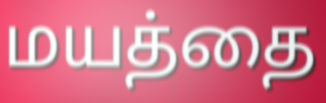
மயத்தை